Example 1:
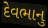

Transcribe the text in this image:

દેવભાનુ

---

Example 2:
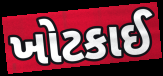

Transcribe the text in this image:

ખોટકાઈ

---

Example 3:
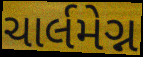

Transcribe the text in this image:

ચાર્લમેગ્ન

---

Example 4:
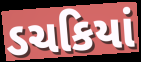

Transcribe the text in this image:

ડચકિયાં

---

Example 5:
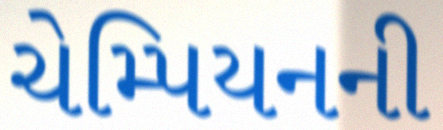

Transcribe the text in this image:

ચેમ્પિયનની